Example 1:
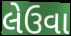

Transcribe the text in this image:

લેઉવા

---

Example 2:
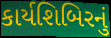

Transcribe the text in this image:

કાર્યશિબિરનું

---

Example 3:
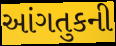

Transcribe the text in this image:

આંગતુકની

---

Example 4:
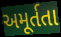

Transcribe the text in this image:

અમૂર્તતા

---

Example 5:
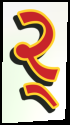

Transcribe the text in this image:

ર્